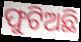
ଫୁଟିଅଛି